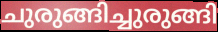
ചുരുങ്ങിച്ചുരുങ്ങി